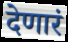
देणारं